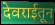
देवराईतून